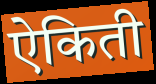
ऐकिती